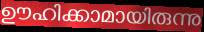
ഊഹിക്കാമായിരുന്നു